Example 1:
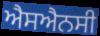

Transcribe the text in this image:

ਐਸਐਨਸੀ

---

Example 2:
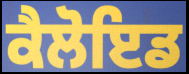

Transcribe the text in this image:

ਕੈਲੋਇਡ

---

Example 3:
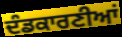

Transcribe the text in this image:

ਦੰਡਕਾਰਣੀਆਂ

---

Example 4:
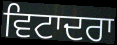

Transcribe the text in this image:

ਵਿਟਾਦਰਾ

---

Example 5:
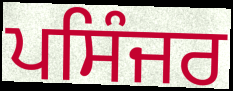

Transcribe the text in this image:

ਪਸਿੰਜਰ